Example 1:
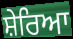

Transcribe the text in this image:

ਸ਼ੇਰਿਆ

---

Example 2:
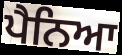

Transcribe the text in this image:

ਪੈਨਿਆ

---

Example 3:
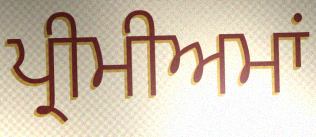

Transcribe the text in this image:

ਪ੍ਰੀਮੀਅਮਾਂ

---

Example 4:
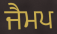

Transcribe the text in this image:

ਜੈਮਪ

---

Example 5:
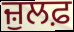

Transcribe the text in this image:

ਜ਼ੁਲਫ਼